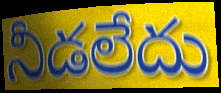
నీడలేదు